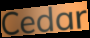
Cedar